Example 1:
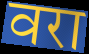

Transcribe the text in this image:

वरा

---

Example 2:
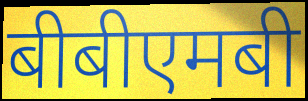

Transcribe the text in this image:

बीबीएमबी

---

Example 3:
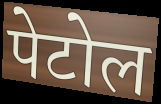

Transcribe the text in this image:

पेटोल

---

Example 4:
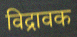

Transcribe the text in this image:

विद्रावक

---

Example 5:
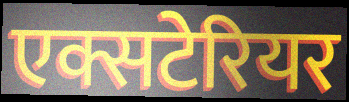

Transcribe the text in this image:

एक्सटेरियर